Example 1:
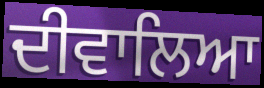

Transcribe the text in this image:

ਦੀਵਾਲਿਆ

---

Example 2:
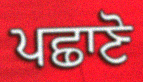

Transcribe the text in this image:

ਪਛਾਣੋ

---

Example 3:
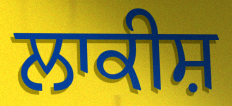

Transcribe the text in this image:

ਲਾਕੀਸ਼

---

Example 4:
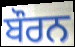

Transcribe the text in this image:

ਬੌਰਨ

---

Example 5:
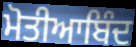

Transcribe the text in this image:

ਮੋਤੀਆਬਿੰਦ